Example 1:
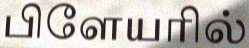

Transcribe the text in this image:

பிளேயரில்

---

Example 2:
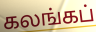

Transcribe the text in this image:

கலங்கப்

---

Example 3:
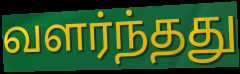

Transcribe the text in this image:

வளர்ந்தது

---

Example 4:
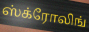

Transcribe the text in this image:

ஸ்க்ரோலிங்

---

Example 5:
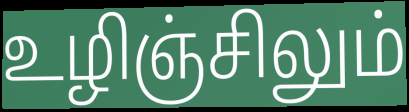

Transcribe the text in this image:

உழிஞ்சிலும்